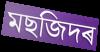
মছজিদৰ